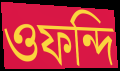
ওফন্দি